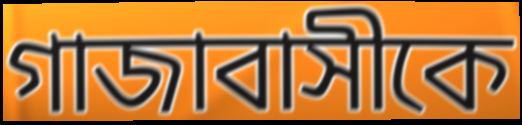
গাজাবাসীকে